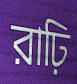
রাঢ়ি